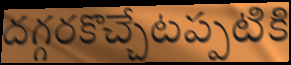
దగ్గరకొచ్చేటప్పటికి